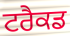
ਟਰੈਕਡ